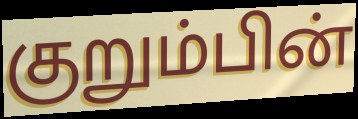
குறும்பின்